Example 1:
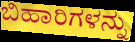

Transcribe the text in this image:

ಬಿಹಾರಿಗಳನ್ನು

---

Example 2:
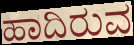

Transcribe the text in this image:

ಹಾದಿರುವ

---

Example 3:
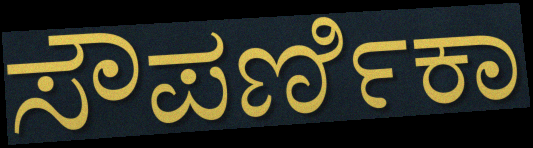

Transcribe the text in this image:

ಸೌಪರ್ಣಿಕಾ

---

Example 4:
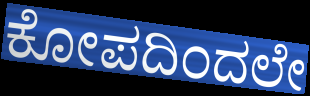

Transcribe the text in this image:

ಕೋಪದಿಂದಲೇ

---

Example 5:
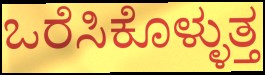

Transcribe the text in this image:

ಒರೆಸಿಕೊಳ್ಳುತ್ತ